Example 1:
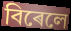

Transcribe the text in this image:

বিৰেলে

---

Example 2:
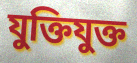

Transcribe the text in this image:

যুক্তিযুক্ত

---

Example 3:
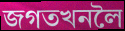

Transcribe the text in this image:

জগতখনলৈ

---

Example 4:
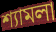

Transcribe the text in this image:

শ্যামলা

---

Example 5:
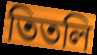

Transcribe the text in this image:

তিতলি